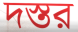
দস্তর